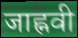
जाह्नवी